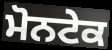
ਮੋਨਟੇਕ